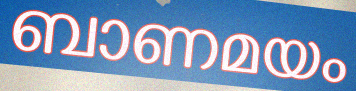
ബാണമയം